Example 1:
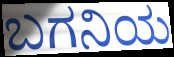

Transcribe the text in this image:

ಬಗನಿಯ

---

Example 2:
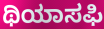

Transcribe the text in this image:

ಥಿಯಾಸಫಿ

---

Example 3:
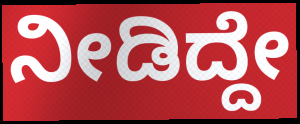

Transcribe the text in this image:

ನೀಡಿದ್ದೇ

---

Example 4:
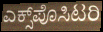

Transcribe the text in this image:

ಎಕ್ಸ್‌ಪೊಸಿಟರಿ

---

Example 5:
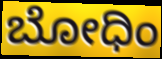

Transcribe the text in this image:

ಬೋಧಿಂ